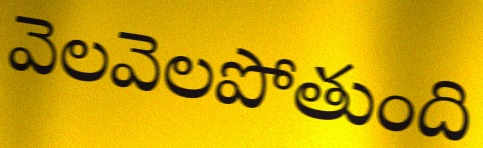
వెలవెలపోతుంది